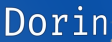
Dorin